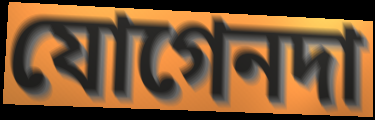
যোগেনদা